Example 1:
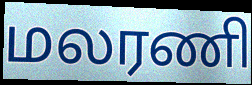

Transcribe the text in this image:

மலரணி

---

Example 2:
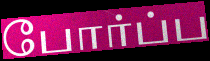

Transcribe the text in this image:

போர்ப்ப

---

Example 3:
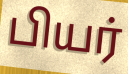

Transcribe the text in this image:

பியர்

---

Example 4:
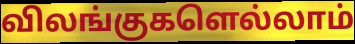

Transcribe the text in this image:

விலங்குகளெல்லாம்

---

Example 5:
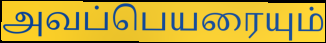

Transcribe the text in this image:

அவப்பெயரையும்